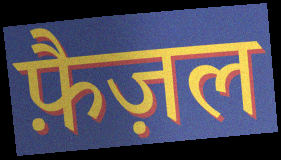
फ़ैज़ल